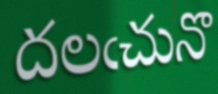
దలఁచునొ